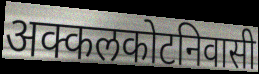
अक्कलकोटनिवासी